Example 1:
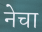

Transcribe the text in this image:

नेचा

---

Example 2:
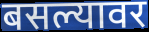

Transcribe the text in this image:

बसल्यावर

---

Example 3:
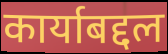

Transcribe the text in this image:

कार्याबद्दल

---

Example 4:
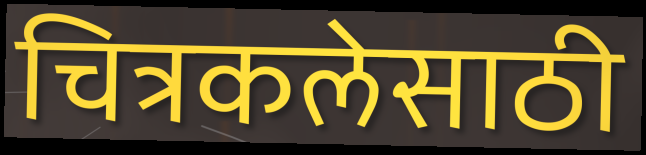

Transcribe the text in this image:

चित्रकलेसाठी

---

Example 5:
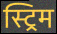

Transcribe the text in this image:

स्ट्रिम